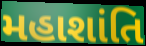
મહાશાંતિ